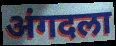
अंगदला